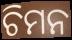
ଚିମନ